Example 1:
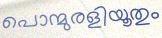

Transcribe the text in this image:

പൊന്മുരളിയൂതും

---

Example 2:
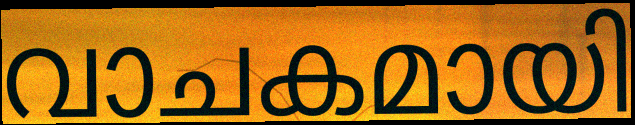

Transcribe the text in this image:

വാചകമായി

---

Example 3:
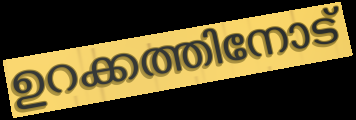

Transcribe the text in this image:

ഉറക്കത്തിനോട്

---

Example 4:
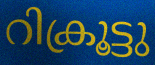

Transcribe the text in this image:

റിക്രൂട്ടു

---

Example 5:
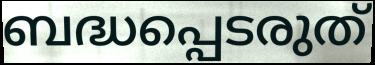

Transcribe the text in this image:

ബദ്ധപ്പെടരുത്